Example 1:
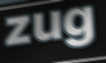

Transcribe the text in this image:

zug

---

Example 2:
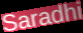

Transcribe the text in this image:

Saradhi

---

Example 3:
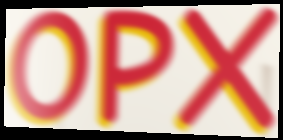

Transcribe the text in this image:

OPX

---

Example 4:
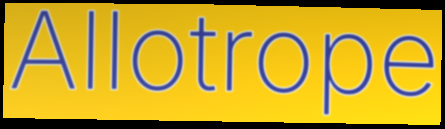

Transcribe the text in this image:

Allotrope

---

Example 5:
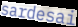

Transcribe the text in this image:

sardesai